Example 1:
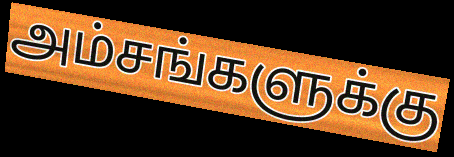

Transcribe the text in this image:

அம்சங்களுக்கு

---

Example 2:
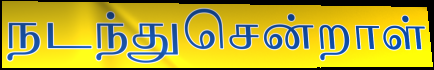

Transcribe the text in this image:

நடந்துசென்றாள்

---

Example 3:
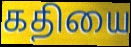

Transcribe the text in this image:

கதியை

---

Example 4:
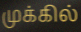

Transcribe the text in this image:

முக்கில்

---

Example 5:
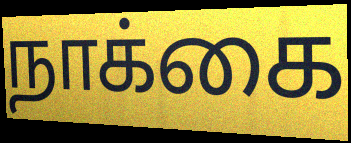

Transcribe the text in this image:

நாக்கை